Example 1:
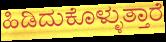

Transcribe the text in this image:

ಹಿಡಿದುಕೊಳ್ಳುತ್ತಾರೆ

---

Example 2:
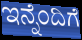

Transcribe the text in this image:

ಇನ್ನೆಂದಿಗೆ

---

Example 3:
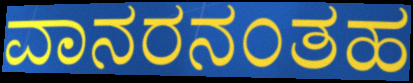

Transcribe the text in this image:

ವಾನರನಂತಹ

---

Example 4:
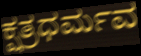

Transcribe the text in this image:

ಕ್ಷತ್ರಧರ್ಮವ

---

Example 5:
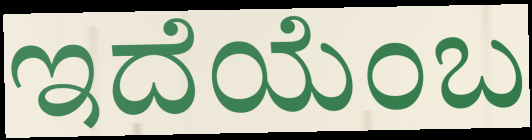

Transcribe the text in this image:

ಇದೆಯೆಂಬ